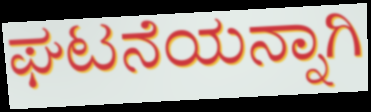
ಘಟನೆಯನ್ನಾಗಿ